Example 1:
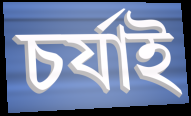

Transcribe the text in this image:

চর্যাই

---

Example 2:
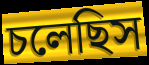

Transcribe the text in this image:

চলেছিস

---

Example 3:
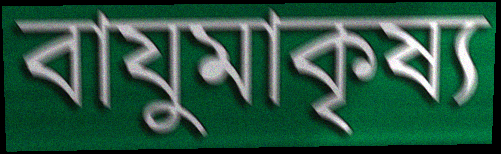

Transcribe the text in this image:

বাযুমাকৃষ্য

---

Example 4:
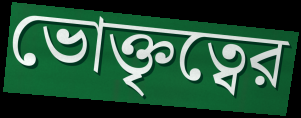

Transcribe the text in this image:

ভোক্তৃত্বের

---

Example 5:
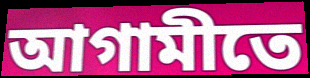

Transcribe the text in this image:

আগামীতে